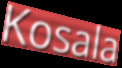
Kosala